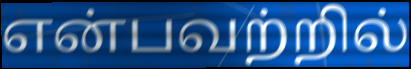
என்பவற்றில்